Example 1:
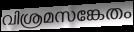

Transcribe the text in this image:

വിശ്രമസങ്കേതം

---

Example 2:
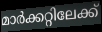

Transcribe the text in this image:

മാർക്കറ്റിലേക്ക്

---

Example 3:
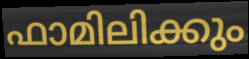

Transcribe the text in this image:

ഫാമിലിക്കും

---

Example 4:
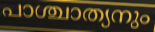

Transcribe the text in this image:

പാശ്ചാത്യനും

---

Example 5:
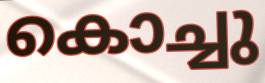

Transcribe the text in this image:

കൊച്ചു